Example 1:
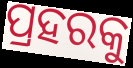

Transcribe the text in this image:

ପ୍ରହରକୁ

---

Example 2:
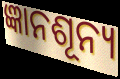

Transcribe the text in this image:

ଜ୍ଞାନଶୂନ୍ୟ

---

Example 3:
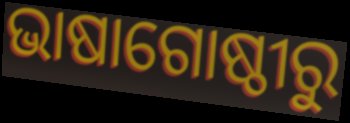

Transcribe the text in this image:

ଭାଷାଗୋଷ୍ଠୀରୁ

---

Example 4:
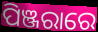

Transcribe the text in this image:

ପିଞ୍ଜରାରେ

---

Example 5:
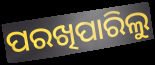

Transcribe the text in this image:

ପରଖିପାରିଲୁ